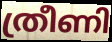
ത്രീണി